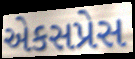
એકસપ્રેસ